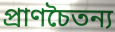
প্রাণচৈতন্য